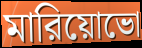
মারিয়োভো